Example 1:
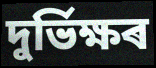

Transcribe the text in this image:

দুৰ্ভিক্ষৰ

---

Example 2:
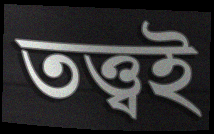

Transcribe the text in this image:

তত্ত্বই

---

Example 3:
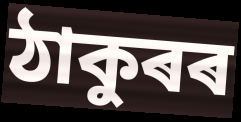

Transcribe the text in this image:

ঠাকুৰৰ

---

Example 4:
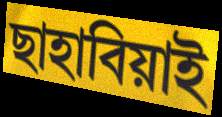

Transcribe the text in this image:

ছাহাবিয়াই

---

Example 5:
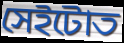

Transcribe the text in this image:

সেইটোত